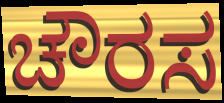
ಚೌರಸ